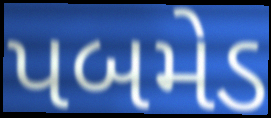
પબમેડ